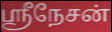
ஸ்ரீநேசன்